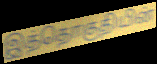
இத்தொகுதியின்